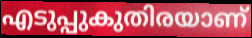
എടുപ്പുകുതിരയാണ്